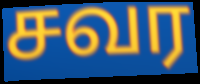
சவர